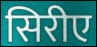
सिरीए